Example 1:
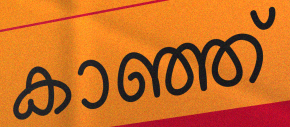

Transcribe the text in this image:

കാഞ്ഞ്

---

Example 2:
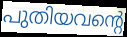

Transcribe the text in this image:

പുതിയവന്റെ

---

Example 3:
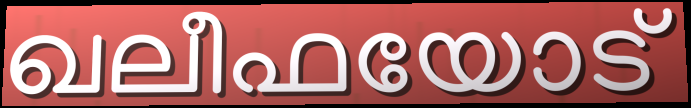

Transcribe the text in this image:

ഖലീഫയോട്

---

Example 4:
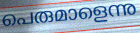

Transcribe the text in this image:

പെരുമാളെന്നു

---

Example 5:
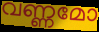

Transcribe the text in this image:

വണ്ണമോ